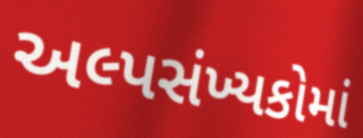
અલ્પસંખ્યકોમાં